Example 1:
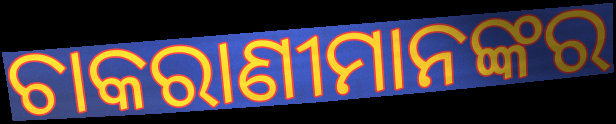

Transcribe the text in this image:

ଚାକରାଣୀମାନଙ୍କର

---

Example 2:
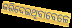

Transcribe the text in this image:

କରିଦେଇଥିବାବେଳେ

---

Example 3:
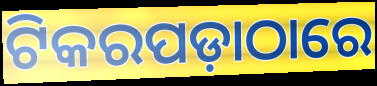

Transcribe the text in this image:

ଟିକରପଡ଼ାଠାରେ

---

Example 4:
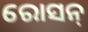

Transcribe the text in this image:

ରୋସନ୍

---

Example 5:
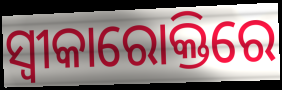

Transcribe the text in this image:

ସ୍ୱୀକାରୋକ୍ତିରେ